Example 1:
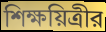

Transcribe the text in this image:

শিক্ষয়িত্রীর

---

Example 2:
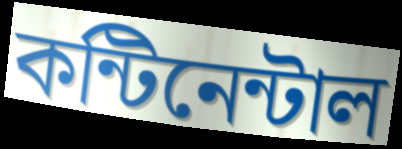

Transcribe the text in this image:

কন্টিনেন্টাল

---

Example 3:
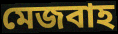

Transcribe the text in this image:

মেজবাহ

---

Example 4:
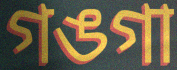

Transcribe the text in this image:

গঙগা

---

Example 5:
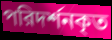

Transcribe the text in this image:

পরিদর্শনকৃত